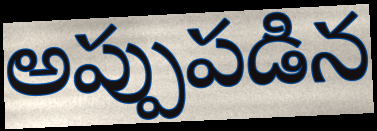
అప్పుపడిన